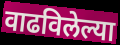
वाढविलेल्या